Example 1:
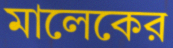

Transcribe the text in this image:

মালেকের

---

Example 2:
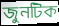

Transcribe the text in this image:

জুনটিক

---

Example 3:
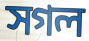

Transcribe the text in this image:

সগল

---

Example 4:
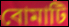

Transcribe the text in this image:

বোমাটি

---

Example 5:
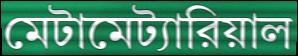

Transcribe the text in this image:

মেটামেট্যারিয়াল